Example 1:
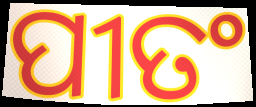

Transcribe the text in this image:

ପୀତଂ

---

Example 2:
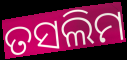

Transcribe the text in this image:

ତସଲିମ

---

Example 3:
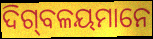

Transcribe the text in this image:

ଦିଗ୍‌ବଳୟମାନେ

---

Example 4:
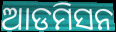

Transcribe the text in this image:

ଆଡମିସନ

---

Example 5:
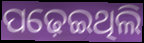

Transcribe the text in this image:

ପଢ଼େଇଥିଲି